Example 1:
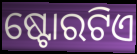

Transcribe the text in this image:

ଷ୍ଟୋରଟିଏ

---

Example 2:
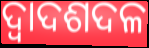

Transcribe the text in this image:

ଦ୍ୱାଦଶଦଳ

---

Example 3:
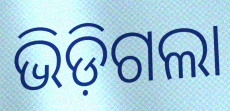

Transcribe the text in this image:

ଭିଡ଼ିଗଲା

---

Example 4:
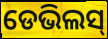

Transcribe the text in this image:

ଡେଭିଲସ୍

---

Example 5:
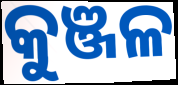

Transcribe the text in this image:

କୁଞ୍ଜଳ